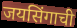
जयसिंगाची